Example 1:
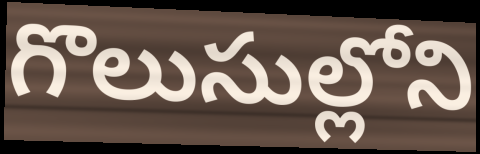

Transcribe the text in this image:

గొలుసుల్లోని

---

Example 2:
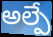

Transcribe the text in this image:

అల్పే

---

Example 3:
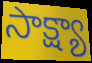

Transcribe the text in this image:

సాక్ష్యా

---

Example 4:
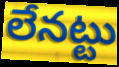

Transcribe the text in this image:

లేనట్టు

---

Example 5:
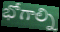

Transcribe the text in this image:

భోగాల్ని